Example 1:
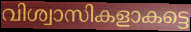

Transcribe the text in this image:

വിശ്വാസികളാകട്ടെ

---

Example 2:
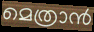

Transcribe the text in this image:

മെത്രാൻ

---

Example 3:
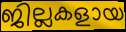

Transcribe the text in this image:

ജില്ലകളായ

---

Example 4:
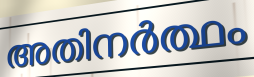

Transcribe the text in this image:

അതിനർത്ഥം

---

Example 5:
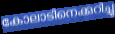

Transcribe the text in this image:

കോലാടിനെക്കുറിച്ചു